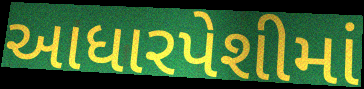
આધારપેશીમાં